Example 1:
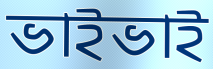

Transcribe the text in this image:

ভাইভাই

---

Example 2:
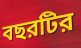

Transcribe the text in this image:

বছরটির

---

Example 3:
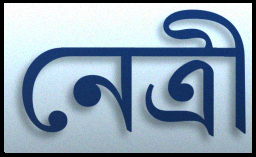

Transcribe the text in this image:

নেত্রী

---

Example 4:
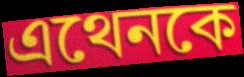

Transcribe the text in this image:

এথেনকে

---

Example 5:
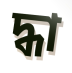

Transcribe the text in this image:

দ্ধা